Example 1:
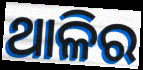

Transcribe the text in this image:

ଥାଳିର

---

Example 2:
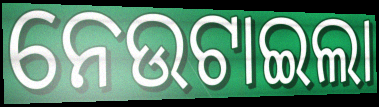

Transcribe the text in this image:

ନେଉଟାଇଲା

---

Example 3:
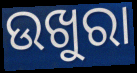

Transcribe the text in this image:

ଉଖୁରା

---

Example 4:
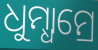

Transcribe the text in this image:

ଧୁମ୍ଧାମ୍ରେ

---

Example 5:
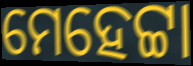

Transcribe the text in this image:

ମେହେଟ୍ଟା